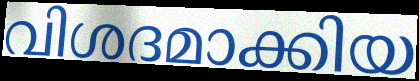
വിശദമാക്കിയ